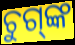
ଚୁଗ୍‌ଙ୍କ